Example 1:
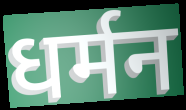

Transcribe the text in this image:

धर्मन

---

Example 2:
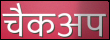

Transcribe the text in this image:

चैकअप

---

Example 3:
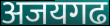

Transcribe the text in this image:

अजयगढ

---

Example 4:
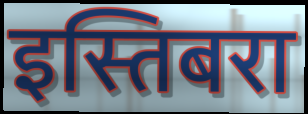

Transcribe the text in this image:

इस्तिबरा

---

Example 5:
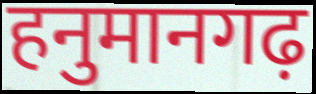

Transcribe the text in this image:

हनुमानगढ़